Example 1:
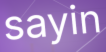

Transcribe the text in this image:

sayin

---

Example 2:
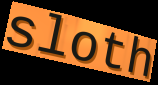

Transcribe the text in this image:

sloth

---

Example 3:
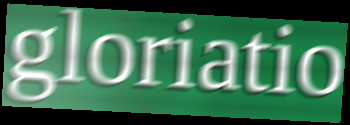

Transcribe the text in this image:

gloriatio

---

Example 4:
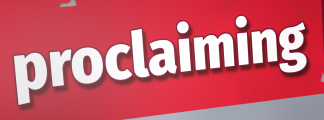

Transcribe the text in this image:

proclaiming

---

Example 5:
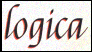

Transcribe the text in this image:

logica